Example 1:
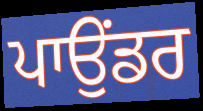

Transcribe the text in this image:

ਪਾਉਂਡਰ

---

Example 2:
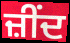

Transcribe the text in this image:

ਜ਼ੀਂਦ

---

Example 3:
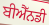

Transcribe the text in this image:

ਬੀਐੱਨਡੀ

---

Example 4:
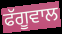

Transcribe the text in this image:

ਫੱਗੂਵਾਲ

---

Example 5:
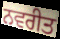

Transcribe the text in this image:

ਨਵਰੀਤ